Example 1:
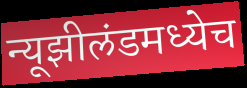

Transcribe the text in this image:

न्यूझीलंडमध्येच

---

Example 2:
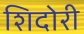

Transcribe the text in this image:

शिदोरी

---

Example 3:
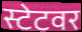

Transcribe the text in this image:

स्टेटवर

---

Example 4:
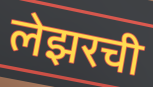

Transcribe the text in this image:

लेझरची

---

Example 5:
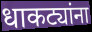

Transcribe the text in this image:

धाकट्यांना